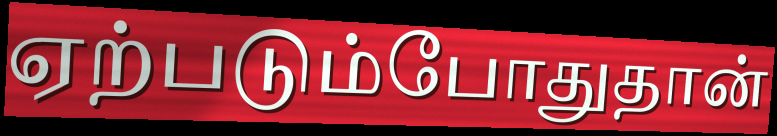
ஏற்படும்போதுதான்